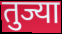
तुज्या